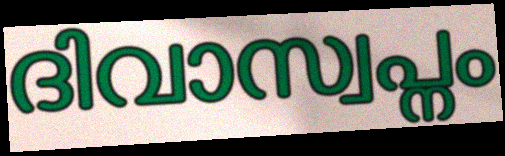
ദിവാസ്വപ്നം